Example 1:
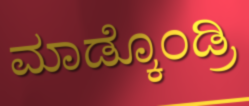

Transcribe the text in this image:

ಮಾಡ್ಕೊಂಡ್ರಿ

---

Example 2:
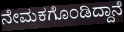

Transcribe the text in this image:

ನೇಮಕಗೊಂಡಿದ್ದಾನೆ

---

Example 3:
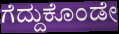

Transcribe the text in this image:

ಗೆದ್ದುಕೊಂಡೇ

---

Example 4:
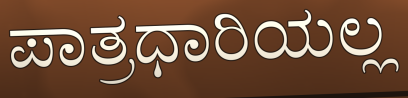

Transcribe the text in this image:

ಪಾತ್ರಧಾರಿಯಲ್ಲ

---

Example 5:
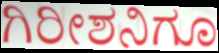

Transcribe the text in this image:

ಗಿರೀಶನಿಗೂ